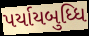
પર્યાયબુધ્ધિ